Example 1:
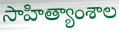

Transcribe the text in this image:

సాహిత్యాంశాల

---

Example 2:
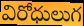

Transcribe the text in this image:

విరోధులుగ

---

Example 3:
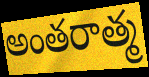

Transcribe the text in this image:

అంతరాత్మ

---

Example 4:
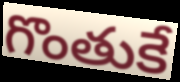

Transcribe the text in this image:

గొంతుకే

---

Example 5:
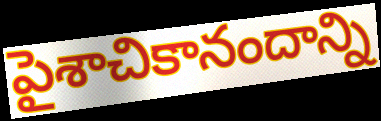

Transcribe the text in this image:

పైశాచికానందాన్ని